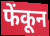
फेंकून